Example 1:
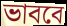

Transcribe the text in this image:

ভাববে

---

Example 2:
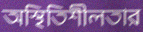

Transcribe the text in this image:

অস্থিতিশীলতার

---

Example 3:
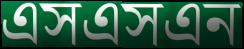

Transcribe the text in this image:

এসএসএন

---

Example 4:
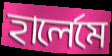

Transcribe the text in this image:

হার্লেমে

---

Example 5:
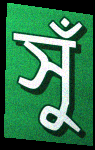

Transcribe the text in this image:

সুঁ